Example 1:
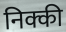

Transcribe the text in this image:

निक्‍की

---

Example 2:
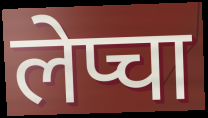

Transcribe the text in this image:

लेप्चा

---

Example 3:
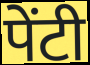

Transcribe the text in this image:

पेंटी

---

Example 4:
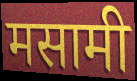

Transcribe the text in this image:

मसामी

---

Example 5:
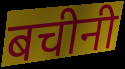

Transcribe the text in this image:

बचीनी